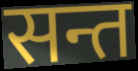
सन्त